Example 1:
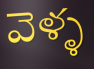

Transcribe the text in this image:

వెళ్ళ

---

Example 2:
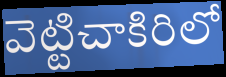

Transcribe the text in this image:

వెట్టిచాకిరిలో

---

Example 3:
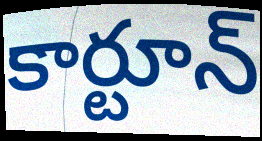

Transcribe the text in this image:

కార్టూన్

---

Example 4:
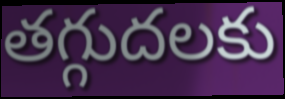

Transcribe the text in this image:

తగ్గుదలకు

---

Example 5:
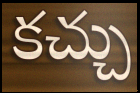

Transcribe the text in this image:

కచ్చు